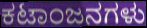
ಕಟಾಂಜನಗಳು